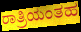
ರಾತ್ರಿಯಂತಹ